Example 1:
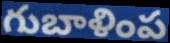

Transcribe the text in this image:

గుబాళింప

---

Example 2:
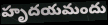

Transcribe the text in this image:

హృదయమందు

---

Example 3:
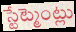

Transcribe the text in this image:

స్టేట్మెంట్లు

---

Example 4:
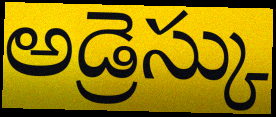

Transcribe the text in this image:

అడ్రెస్కు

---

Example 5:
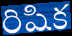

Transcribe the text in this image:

రిషిక